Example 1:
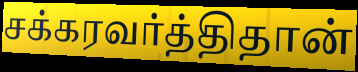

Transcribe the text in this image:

சக்கரவர்த்திதான்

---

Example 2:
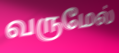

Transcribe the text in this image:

வருமேல்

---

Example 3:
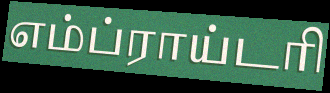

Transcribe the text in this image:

எம்ப்ராய்டரி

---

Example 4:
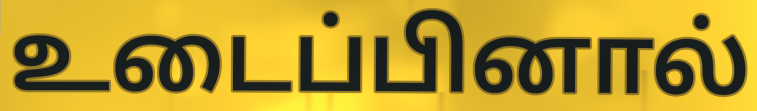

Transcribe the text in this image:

உடைப்பினால்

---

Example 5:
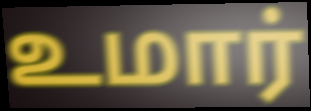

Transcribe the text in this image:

உமார்